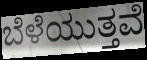
ಬೆಳೆಯುತ್ತವೆ